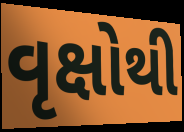
વૃક્ષોથી